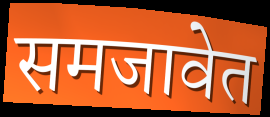
समजावेत